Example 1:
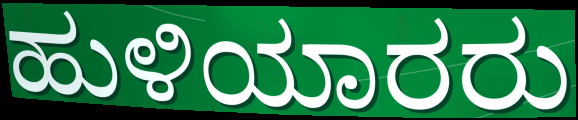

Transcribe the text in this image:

ಹುಳಿಯಾರರು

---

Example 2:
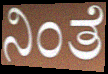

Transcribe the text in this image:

ನಿಂತೆ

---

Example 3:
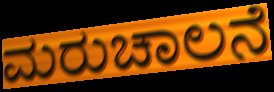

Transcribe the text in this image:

ಮರುಚಾಲನೆ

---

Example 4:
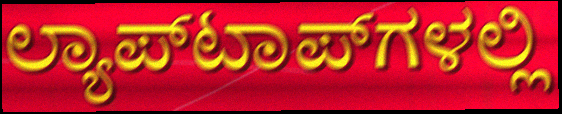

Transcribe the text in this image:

ಲ್ಯಾಪ್‌ಟಾಪ್‌ಗಳಲ್ಲಿ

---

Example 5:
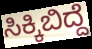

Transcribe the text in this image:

ಸಿಕ್ಕಿಬಿದ್ದೆ